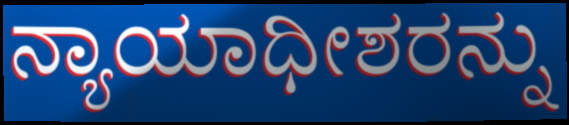
ನ್ಯಾಯಾಧೀಶರನ್ನು